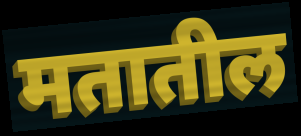
मतातील